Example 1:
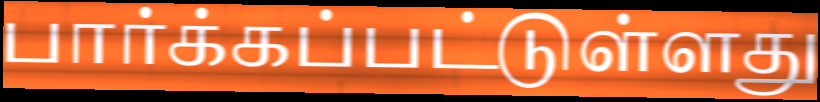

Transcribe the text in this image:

பார்க்கப்பட்டுள்ளது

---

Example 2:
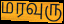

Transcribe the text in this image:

மரவுரு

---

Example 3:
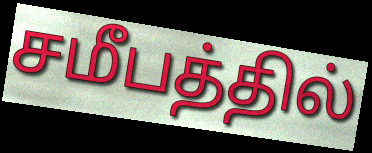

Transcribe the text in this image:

சமீபத்தில்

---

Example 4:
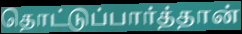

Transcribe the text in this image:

தொட்டுப்பார்த்தான்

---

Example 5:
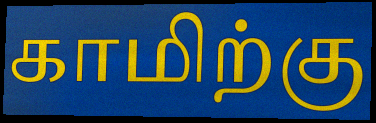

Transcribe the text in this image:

காமிற்கு